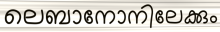
ലെബാനോനിലേക്കും